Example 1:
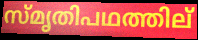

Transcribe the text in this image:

സ്മൃതിപഥത്തില്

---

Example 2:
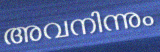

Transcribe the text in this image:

അവനിന്നും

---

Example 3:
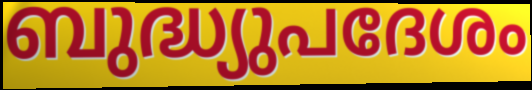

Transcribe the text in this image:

ബുദ്ധ്യുപദേശം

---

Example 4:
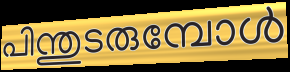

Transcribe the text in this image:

പിന്തുടരുമ്പോൾ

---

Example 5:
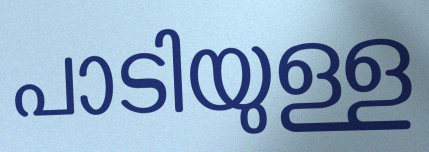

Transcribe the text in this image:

പാടിയുള്ള